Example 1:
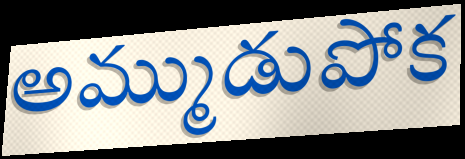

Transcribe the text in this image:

అమ్ముడుపోక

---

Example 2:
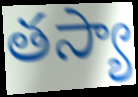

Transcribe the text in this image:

తస్యా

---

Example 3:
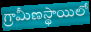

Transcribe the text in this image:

గ్రామీణస్థాయిలో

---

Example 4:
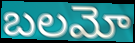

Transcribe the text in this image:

బలమో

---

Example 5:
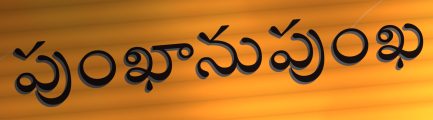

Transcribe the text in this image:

పుంఖానుపుంఖ